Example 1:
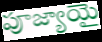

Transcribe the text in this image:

పూజ్యాయై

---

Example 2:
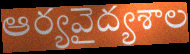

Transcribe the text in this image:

ఆర్యవైద్యశాల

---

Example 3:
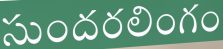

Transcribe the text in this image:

సుందరలింగం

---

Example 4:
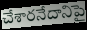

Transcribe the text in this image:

చేశారనేదానిపై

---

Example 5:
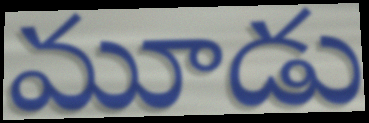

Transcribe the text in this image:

మూడు